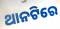
ଥାନଟିରେ